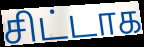
சிட்டாக